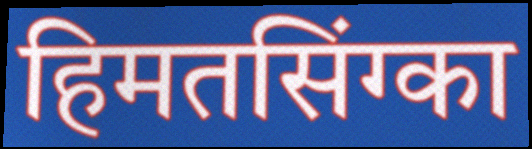
हिमतसिंग्का